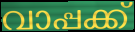
വാപ്പക്ക്